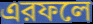
এরফলে